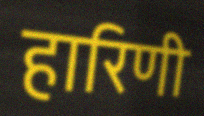
हारिणी